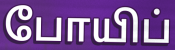
போயிப்